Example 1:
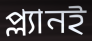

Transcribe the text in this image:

প্ল্যানই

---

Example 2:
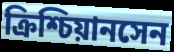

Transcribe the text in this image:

ক্রিশ্চিয়ানসেন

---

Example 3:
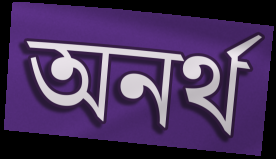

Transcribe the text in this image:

অনর্থ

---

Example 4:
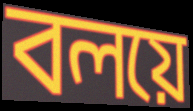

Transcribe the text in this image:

বলয়ে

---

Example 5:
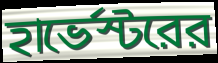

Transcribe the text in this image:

হার্ভেস্টরের